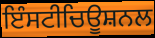
ਇੰਸਟੀਚਿਊਸ਼ਨਲ